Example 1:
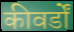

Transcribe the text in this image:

कीवर्डों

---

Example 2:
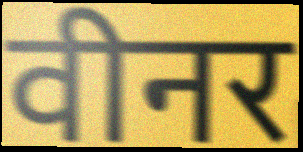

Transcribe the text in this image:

वीनर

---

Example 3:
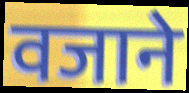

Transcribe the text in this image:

वजाने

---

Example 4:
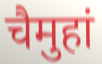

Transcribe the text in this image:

चैमुहां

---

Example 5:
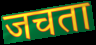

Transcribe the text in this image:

जचता